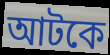
আটকে